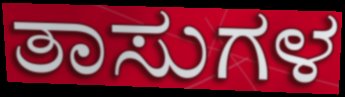
ತಾಸುಗಳ